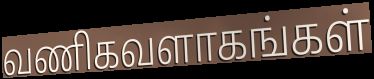
வணிகவளாகங்கள்